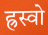
ह्रस्वो